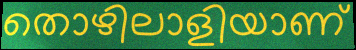
തൊഴിലാളിയാണ്